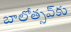
బాలోత్సవ్‌కు